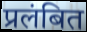
प्रलंबित